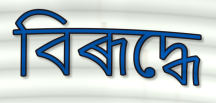
বিৰূদ্ধে